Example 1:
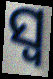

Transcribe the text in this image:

ସ୍ୱ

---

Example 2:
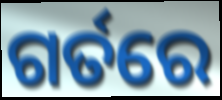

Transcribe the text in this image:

ଗର୍ତରେ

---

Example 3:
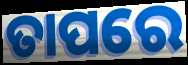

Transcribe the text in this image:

ତାପରେ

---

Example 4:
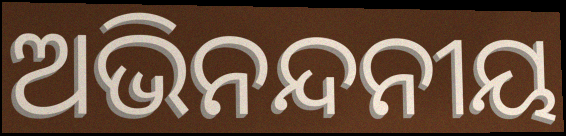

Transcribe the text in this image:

ଅଭିନନ୍ଦନୀୟ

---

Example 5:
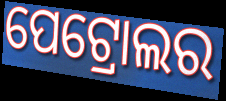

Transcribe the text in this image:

ପେଟ୍ରୋଲର